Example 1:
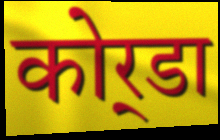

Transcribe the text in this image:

कोर्डा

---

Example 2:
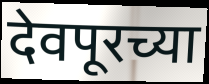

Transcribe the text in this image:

देवपूरच्या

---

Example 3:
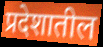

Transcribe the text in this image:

प्रदेशातील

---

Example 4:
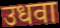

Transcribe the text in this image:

उधवा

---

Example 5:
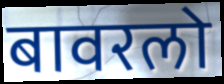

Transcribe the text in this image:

बावरलो